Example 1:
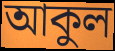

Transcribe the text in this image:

আকুল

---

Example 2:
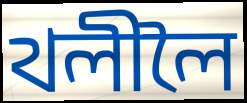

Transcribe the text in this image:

থলীলৈ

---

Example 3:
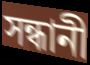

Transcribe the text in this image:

সন্ধানী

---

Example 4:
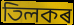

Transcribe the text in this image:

তিলকৰ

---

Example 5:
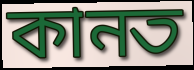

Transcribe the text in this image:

কানত